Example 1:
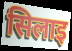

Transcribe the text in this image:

सिलाइ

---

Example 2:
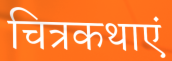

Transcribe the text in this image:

चित्रकथाएं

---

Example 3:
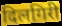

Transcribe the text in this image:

दिलगिरी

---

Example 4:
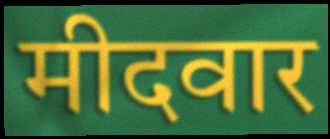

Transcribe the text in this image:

मीदवार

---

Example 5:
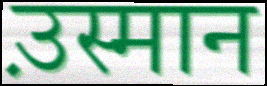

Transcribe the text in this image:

उ़स्मान